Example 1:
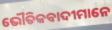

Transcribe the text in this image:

ଭୌତିକବାଦୀମାନେ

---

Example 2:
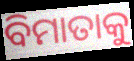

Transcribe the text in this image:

ବିମାତାକୁ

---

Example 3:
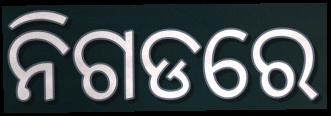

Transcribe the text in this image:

ନିଗଡରେ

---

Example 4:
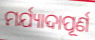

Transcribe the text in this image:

ମର୍ଯ୍ୟାଦାପୂର୍ଣ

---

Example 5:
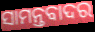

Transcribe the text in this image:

ସାମନ୍ତବାଦର